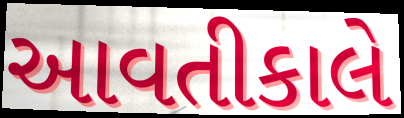
આવતીકાલે